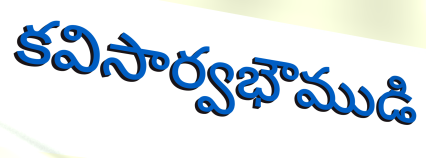
కవిసార్వభౌముడి